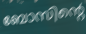
ബോസിന്റെ